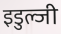
इडुल्जी